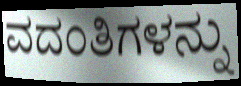
ವದಂತಿಗಳನ್ನು